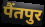
पैंतपुर